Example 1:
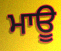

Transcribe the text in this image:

ਮਾਊ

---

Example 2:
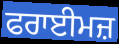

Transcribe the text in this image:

ਫਰਾਈਮਜ਼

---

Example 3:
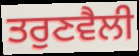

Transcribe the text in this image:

ਤਰੁਣਵੈਲੀ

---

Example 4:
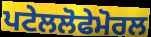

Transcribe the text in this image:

ਪਟੇਲਲੋਫੇਮੋਰਲ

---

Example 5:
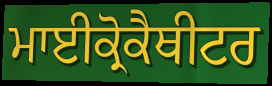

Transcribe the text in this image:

ਮਾਈਕ੍ਰੋਕੈਥੀਟਰ